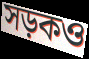
সড়কও